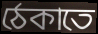
ঠেকাতে